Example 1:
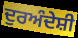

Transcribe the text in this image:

ਦੁਰਅੰਦੇਸ਼ੀ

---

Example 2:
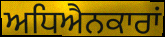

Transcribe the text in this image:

ਅਧਿਐਨਕਾਰਾਂ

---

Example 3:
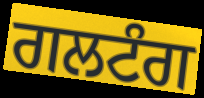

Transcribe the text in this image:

ਗਲਟੰਗ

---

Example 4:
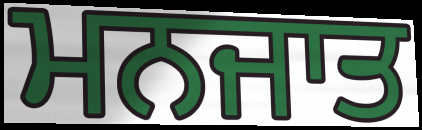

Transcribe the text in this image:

ਮਨਜਾਤ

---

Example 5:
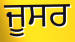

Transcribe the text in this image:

ਜੂਸਰ